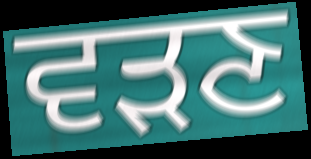
ਵੜਣ